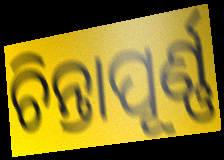
ଚିନ୍ତାପୂର୍ଣ୍ଣ